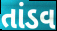
તાંડવ